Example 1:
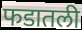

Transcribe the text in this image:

फडातली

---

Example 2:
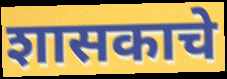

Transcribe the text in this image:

शासकाचे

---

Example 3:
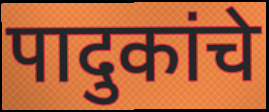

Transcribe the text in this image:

पादुकांचे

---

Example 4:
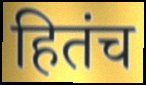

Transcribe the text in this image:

हितंच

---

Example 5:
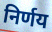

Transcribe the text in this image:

निर्णय